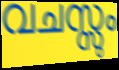
വചസ്സും